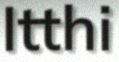
Itthi